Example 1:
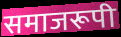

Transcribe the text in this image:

समाजरूपी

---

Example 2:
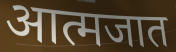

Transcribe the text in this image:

आत्मजात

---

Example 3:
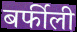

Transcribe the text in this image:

बर्फीली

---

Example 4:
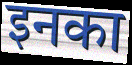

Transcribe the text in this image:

इनका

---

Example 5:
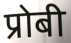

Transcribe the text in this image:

प्रोबी